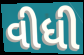
વીધી